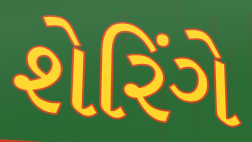
શેરિંગે